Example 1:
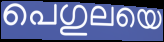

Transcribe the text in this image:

പെഗുലയെ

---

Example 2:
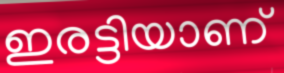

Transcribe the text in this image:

ഇരട്ടിയാണ്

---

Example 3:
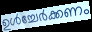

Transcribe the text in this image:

ഉൾച്ചേർക്കണം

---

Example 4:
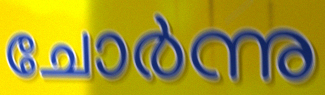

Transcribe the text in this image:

ചോർന്നു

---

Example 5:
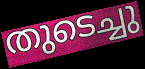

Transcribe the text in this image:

തുടെച്ചു